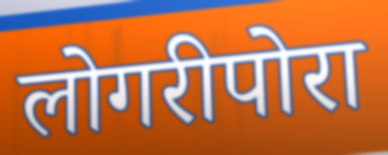
लोगरीपोरा